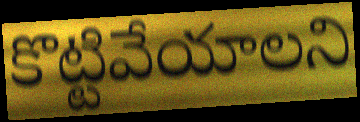
కొట్టివేయాలని